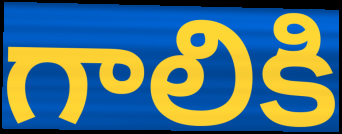
గాలికి